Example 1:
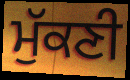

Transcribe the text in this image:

ਮੁੱਕਣੀ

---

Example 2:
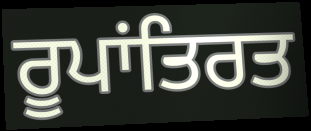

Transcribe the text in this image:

ਰੂਪਾਂਤਿਰਤ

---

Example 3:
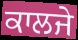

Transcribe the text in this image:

ਕਾਲਜੇ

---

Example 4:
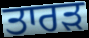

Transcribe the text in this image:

ਤਾਰੜ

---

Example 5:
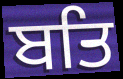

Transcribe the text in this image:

ਬਤਿ